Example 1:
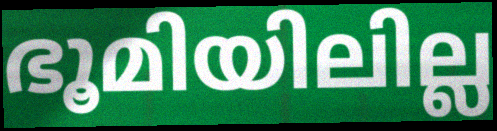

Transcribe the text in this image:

ഭൂമിയിലില്ല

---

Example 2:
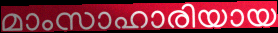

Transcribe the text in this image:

മാംസാഹാരിയായ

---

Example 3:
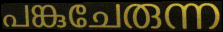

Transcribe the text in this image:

പങ്കുചേരുന്ന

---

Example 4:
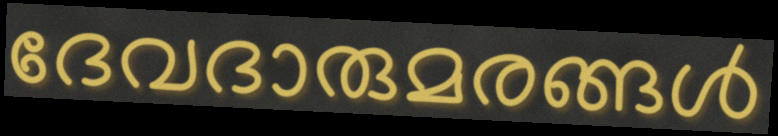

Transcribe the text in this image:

ദേവദാരുമരങ്ങൾ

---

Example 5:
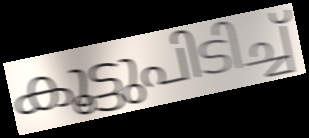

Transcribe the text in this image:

കൂട്ടുപിടിച്ച്